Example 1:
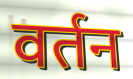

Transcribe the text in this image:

वर्तन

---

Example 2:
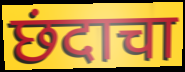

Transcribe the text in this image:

छंदाचा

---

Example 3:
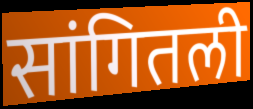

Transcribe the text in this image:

सांगितली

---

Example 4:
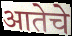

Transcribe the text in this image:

आतेचे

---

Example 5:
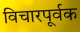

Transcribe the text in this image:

विचारपूर्वक